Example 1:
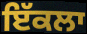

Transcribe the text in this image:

ਇੱਕਲਾ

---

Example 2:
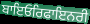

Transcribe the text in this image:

ਬਾਇਓਰਿਫਾਇਨਰੀ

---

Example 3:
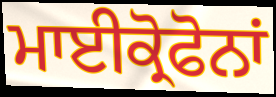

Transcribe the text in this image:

ਮਾਈਕ੍ਰੋਫੋਨਾਂ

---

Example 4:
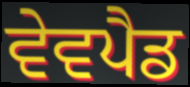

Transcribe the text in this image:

ਵੇਵਪੈਡ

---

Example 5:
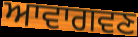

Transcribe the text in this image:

ਆਵਾਗਵਣ